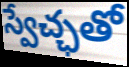
స్వేచ్ఛతో